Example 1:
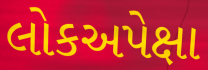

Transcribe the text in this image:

લોકઅપેક્ષા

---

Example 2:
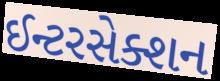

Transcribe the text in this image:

ઈન્ટરસેક્શન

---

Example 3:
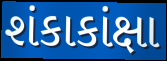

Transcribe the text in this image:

શંકાકાંક્ષા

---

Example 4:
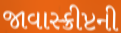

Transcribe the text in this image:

જાવાસ્ક્રીપ્ટની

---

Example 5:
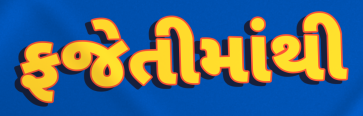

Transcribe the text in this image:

ફજેતીમાંથી